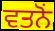
ਵਤਨੋਂ